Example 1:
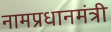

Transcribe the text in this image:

नामप्रधानमंत्री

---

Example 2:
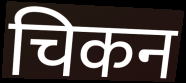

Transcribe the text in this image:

चिकन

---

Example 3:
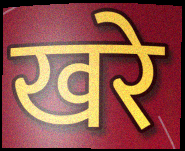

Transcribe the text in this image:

खरे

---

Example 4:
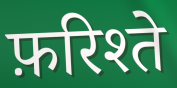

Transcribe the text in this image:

फ़रिश्ते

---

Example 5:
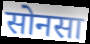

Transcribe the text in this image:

सोनसा